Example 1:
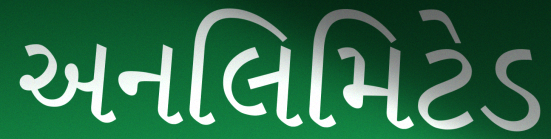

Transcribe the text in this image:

અનલિમિટેડ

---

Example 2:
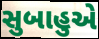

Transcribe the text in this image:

સુબાહુએ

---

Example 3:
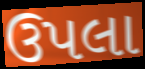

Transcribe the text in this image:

ઉપલા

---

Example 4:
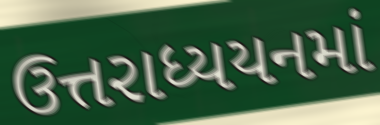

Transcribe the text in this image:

ઉત્તરાધ્યયનમાં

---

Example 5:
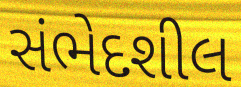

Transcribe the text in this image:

સંભેદશીલ